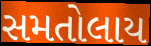
સમતોલાય